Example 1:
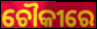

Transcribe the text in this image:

ଚୌକୀରେ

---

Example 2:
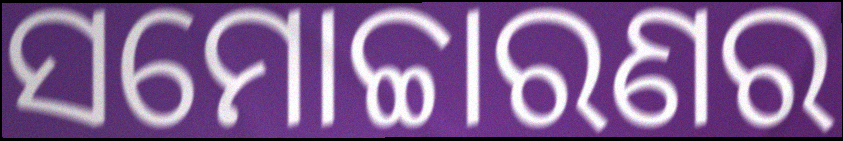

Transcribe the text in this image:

ସମୋଚ୍ଚାରଣର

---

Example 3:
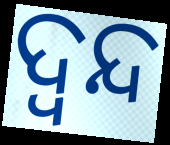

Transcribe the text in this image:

ଦ୍ଵନ୍ଦ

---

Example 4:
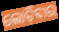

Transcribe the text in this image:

ଲୋଡ଼ିବାର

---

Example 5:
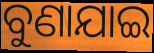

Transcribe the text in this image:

ବୁଣାଯାଇ